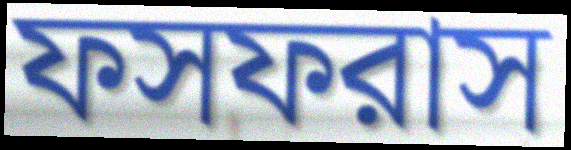
ফসফরাস